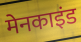
मेनकाइंड